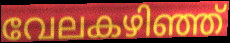
വേലകഴിഞ്ഞ്